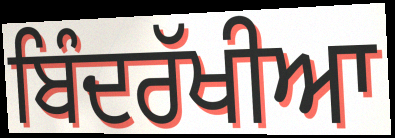
ਬਿੰਦਰੱਖੀਆ